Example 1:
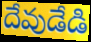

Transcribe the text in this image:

దేవుడేడి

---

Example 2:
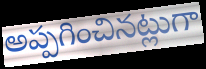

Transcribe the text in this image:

అప్పగించినట్లుగా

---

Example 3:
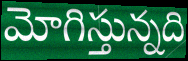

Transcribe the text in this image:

మోగిస్తున్నది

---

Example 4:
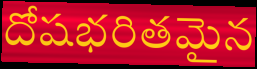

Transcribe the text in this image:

దోషభరితమైన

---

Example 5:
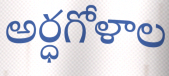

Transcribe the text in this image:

అర్ధగోళాల